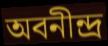
অবনীন্দ্র